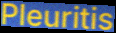
Pleuritis